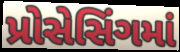
પ્રોસેસિંગમાં